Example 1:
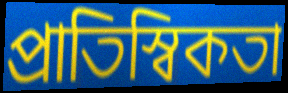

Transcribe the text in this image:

প্রাতিস্বিকতা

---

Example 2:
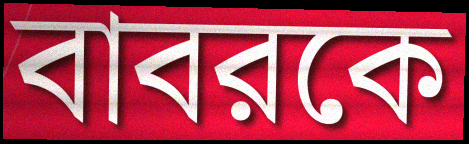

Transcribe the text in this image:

বাবরকে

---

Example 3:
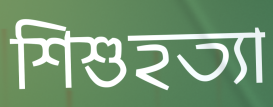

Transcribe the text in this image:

শিশুহত্যা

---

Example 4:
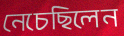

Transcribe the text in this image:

নেচেছিলেন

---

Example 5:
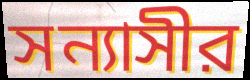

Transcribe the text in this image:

সন্যাসীর